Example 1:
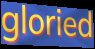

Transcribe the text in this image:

gloried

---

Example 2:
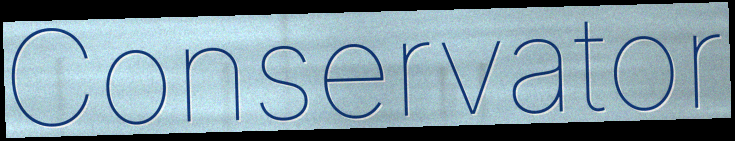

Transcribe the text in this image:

Conservator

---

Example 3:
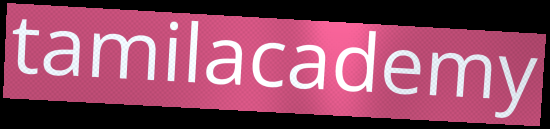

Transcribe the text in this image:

tamilacademy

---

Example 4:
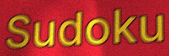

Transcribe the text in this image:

Sudoku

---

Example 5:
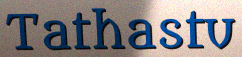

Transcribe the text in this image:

Tathastu